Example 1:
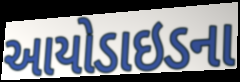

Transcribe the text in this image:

આયોડાઇડના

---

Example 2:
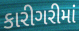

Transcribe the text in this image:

કારીગરીમાં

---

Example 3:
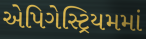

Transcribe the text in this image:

એપિગેસ્ટ્રિયમમાં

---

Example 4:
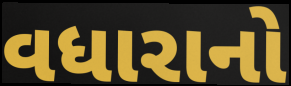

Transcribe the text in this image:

વધારાનો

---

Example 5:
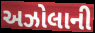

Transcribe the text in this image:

અઝોલાની